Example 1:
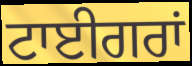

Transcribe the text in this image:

ਟਾਈਗਰਾਂ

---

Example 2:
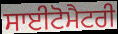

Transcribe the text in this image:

ਸਾਈਟੋਮੈਟਰੀ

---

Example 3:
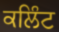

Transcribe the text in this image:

ਕਲਿੰਟ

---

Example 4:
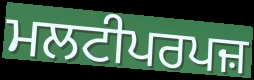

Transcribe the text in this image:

ਮਲਟੀਪਰਪਜ਼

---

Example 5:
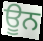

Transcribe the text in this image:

ਊਨ